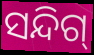
ସନ୍ଦିଗ୍